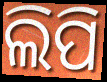
ଲିପି